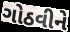
ગોઠવીને